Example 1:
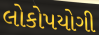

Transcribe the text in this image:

લોકોપયોગી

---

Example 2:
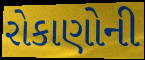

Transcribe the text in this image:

રોકાણોની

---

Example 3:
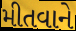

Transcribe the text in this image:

મીતવાને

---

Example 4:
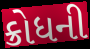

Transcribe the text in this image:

ક્રોધની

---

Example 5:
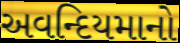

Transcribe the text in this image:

અવન્દિયમાનો